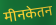
मीनकेतन